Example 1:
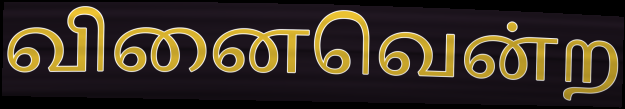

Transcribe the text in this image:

வினைவென்ற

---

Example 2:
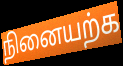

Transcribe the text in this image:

நினையற்க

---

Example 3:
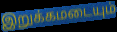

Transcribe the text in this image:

இறுக்கமடையும்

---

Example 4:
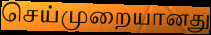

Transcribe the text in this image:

செய்முறையானது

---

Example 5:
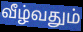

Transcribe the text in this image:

வீழ்வதும்